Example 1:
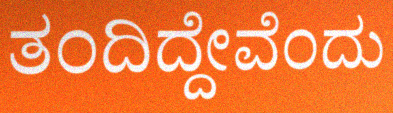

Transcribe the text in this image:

ತಂದಿದ್ದೇವೆಂದು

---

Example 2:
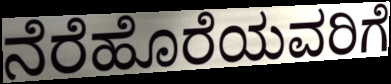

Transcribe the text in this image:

ನೆರೆಹೊರೆಯವರಿಗೆ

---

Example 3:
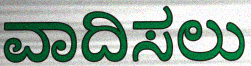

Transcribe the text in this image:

ವಾದಿಸಲು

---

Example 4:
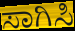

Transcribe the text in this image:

ಸಾಗಿಸಿ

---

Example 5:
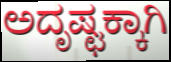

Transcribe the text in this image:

ಅದೃಷ್ಟಕ್ಕಾಗಿ